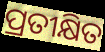
ପ୍ରତୀକ୍ଷିତ